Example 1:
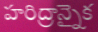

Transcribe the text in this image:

హరిద్రాన్నైక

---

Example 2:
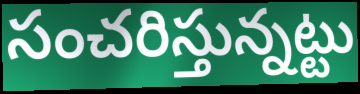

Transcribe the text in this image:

సంచరిస్తున్నట్టు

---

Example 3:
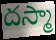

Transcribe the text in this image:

దస్మా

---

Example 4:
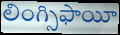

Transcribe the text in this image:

లింగ్సిఫాయీ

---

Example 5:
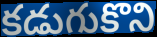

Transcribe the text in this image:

కడుగుకొని